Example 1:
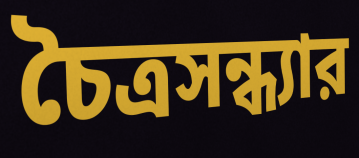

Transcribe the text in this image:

চৈত্রসন্ধ্যার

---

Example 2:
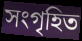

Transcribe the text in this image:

সংগৃহিত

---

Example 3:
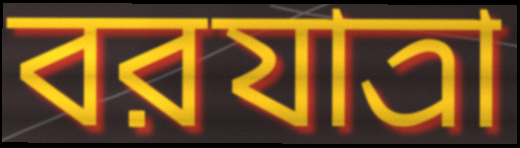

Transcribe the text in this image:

বরযাত্রা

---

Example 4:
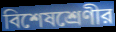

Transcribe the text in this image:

বিশেষশ্রেণীর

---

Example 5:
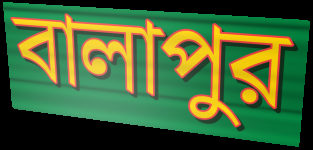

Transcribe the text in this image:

বালাপুর